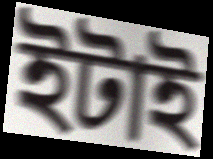
ইটাই